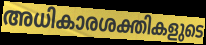
അധികാരശക്തികളുടെ